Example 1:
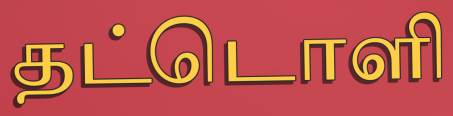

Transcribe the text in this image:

தட்டொளி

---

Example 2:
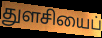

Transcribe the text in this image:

துளசியைப்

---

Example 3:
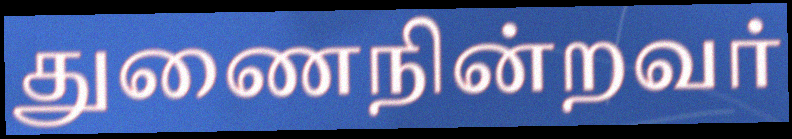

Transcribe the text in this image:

துணைநின்றவர்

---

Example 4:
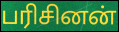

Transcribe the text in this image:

பரிசினன்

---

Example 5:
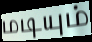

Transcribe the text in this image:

மடியும்